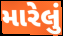
મારેલું